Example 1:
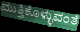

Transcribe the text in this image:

ಮುತ್ತಿಕೊಳ್ಳುವಂತೆ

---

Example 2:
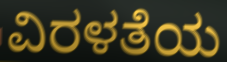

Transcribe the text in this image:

ವಿರಳತೆಯ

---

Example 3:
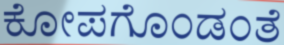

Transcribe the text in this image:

ಕೋಪಗೊಂಡಂತೆ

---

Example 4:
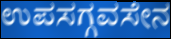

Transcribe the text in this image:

ಉಪಸಗ್ಗವಸೇನ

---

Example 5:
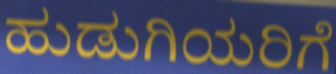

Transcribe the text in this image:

ಹುಡುಗಿಯರಿಗೆ